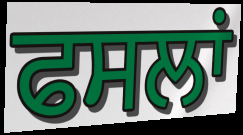
ਫਸਲਾਂ